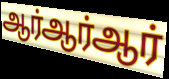
ஆர்ஆர்ஆர்